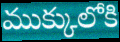
ముక్కులోకి